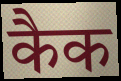
कैक